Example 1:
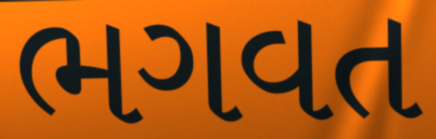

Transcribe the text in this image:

ભગવત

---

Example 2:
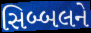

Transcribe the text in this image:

સિબ્બલને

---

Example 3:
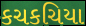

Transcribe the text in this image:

કચકચિયા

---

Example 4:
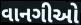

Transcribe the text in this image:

વાનગીઓ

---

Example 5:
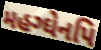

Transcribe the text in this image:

મહગ્ઘેનપિ